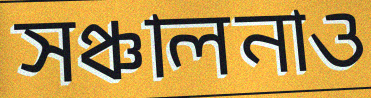
সঞ্চালনাও